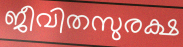
ജീവിതസുരക്ഷ